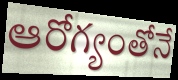
ఆరోగ్యంతోనే